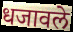
धजावले